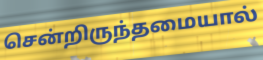
சென்றிருந்தமையால்